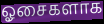
ஓசைகளாக